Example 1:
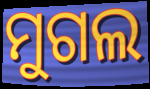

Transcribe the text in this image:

ମୁଗଲ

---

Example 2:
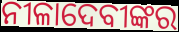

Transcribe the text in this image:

ନୀଳାଦେବୀଙ୍କର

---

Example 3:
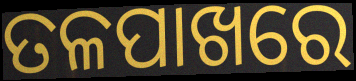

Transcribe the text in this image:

ତଳପାଖରେ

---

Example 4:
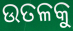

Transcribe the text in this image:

ଉତଳକୁ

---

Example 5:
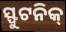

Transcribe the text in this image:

ସ୍ଫୁଟନିକ୍